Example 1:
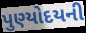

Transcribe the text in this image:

પુણ્યોદયની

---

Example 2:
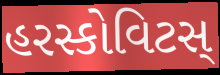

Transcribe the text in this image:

હરસ્કોવિટસ્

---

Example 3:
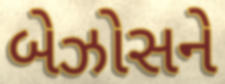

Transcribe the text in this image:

બેઝોસને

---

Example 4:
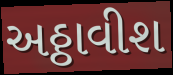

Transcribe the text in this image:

અઠ્ઠાવીશ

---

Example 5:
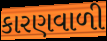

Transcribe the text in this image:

કારણવાળી